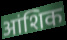
आंशिक